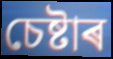
চেষ্টাৰ